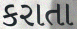
કરાતા